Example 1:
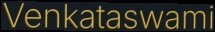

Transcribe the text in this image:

Venkataswami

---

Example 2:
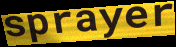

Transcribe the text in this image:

sprayer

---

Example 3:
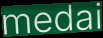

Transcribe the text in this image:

medai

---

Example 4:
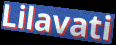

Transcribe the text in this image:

Lilavati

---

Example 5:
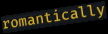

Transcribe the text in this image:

romantically